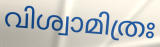
വിശ്വാമിത്രഃ